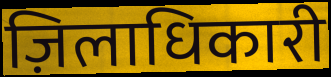
ज़िलाधिकारी